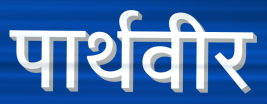
पार्थवीर